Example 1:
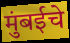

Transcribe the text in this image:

मुंबईचे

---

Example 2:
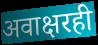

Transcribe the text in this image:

अवाक्षरही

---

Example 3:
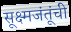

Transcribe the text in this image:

सूक्ष्मजंतूंची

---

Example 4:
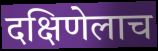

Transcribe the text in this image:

दक्षिणेलाच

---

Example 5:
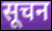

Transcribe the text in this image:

सूचन